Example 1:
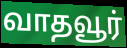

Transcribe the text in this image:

வாதவூர்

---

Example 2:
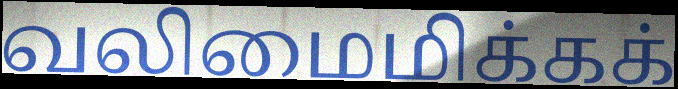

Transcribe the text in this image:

வலிமைமிக்கக்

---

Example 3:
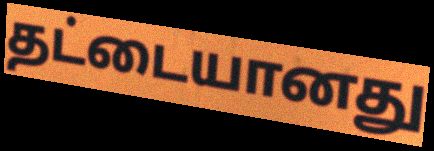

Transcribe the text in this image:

தட்டையானது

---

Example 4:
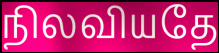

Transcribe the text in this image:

நிலவியதே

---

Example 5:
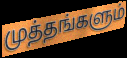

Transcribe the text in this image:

முத்தங்களும்